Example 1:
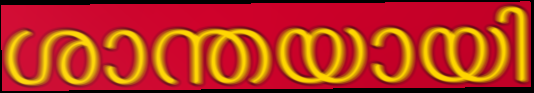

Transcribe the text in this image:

ശാന്തയായി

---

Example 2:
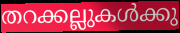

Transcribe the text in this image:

തറക്കല്ലുകൾക്കു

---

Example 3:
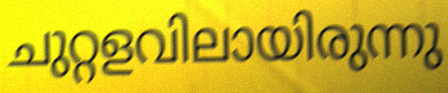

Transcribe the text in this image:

ചുറ്റളവിലായിരുന്നു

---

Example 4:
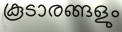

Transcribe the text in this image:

കൂടാരങ്ങളും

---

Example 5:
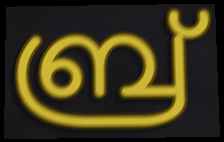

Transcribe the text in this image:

ബ്ര്